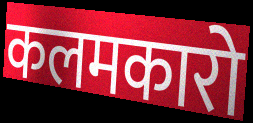
कलमकारो